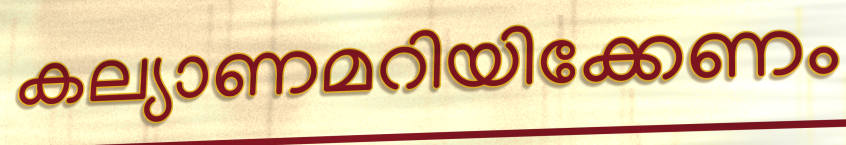
കല്യാണമറിയിക്കേണം